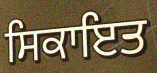
ਸਿਕਾਇਤ